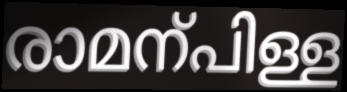
രാമന്പിള്ള